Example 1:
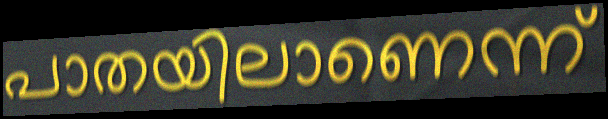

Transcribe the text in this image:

പാതയിലാണെന്ന്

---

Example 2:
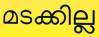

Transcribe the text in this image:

മടക്കില്ല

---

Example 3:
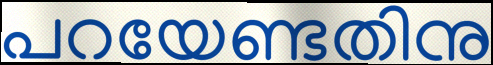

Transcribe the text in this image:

പറയേണ്ടതിനു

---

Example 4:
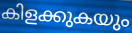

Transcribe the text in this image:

കിളക്കുകയും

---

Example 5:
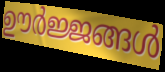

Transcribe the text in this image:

ഊർജ്ജങ്ങൾ